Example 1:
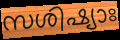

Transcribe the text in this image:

സശിഷ്യാഃ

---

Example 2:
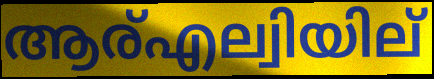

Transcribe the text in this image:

ആര്എല്വിയില്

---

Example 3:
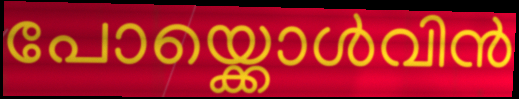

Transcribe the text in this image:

പോയ്ക്കൊൾവിൻ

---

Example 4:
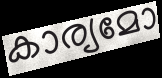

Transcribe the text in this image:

കാര്യമോ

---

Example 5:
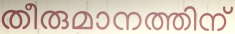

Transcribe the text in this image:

തീരുമാനത്തിന്